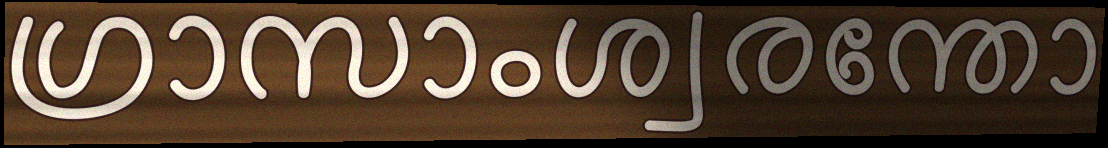
ഗ്രാസാംശ്വരന്തോ